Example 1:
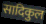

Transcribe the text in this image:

सादिकुल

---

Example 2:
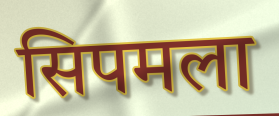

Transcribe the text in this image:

सिपमला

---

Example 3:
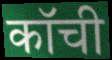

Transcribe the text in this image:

कॉची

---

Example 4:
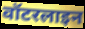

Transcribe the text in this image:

वॉटरलाइन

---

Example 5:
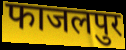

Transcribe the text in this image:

फाजलपुर